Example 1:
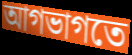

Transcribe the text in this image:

আগভাগতে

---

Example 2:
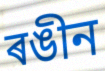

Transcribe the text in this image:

ৰঙীন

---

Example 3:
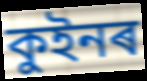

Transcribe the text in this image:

কুইনৰ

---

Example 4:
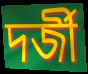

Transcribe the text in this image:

দৰ্জী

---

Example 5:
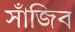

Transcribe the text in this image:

সাঁজিব